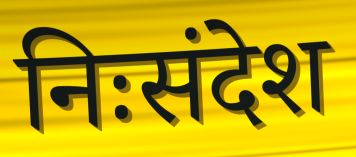
निःसंदेश